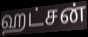
ஹட்சன்